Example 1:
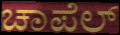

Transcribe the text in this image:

ಚಾಪೆಲ್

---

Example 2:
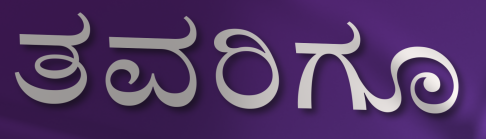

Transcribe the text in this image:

ತವರಿಗೂ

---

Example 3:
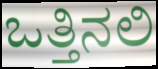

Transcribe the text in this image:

ಒತ್ತಿನಲಿ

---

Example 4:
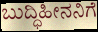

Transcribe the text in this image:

ಬುದ್ಧಿಹೀನನಿಗೆ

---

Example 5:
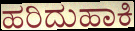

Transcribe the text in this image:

ಹರಿದುಹಾಕಿ